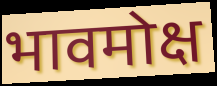
भावमोक्ष